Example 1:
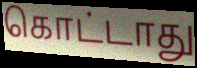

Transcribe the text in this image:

கொட்டாது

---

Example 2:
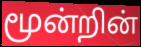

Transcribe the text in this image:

மூன்றின்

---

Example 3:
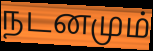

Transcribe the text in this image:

நடனமும்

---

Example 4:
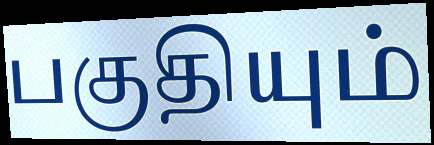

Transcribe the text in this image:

பகுதியும்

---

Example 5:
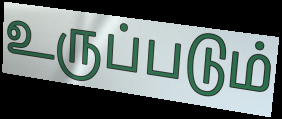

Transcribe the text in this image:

உருப்படும்